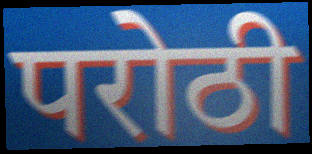
परोठी